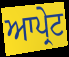
ਆਪ੍ਰੇਟ